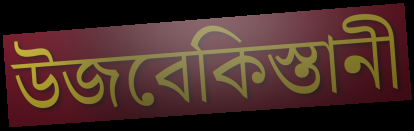
উজবেকিস্তানী